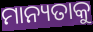
ମାନ୍ୟତାକୁ